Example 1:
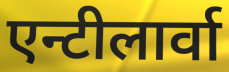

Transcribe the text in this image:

एन्टीलार्वा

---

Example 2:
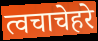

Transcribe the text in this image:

त्वचाचेहरे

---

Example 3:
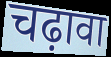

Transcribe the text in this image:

चढ़ावा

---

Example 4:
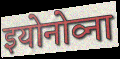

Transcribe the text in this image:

इयोनोव्ना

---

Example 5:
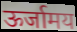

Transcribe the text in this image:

ऊर्जामय